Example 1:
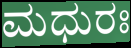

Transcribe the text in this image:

ಮಧುರಃ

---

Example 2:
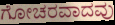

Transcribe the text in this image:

ಗೋಚರವಾದವು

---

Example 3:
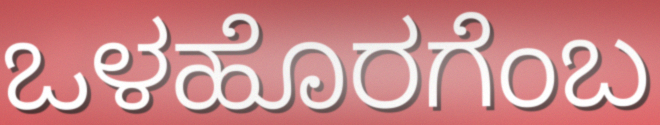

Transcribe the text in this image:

ಒಳಹೊರಗೆಂಬ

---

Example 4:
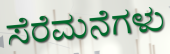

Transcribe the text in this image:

ಸೆರೆಮನೆಗಳು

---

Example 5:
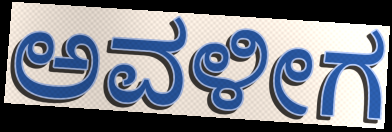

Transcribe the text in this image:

ಅವಳೀಗ